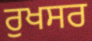
ਰੁਖਸਰ